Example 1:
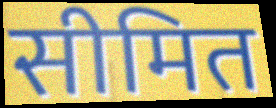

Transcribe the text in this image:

सीमित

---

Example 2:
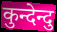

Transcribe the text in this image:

कुन्देन्दु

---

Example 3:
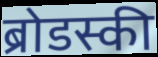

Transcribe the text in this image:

ब्रोडस्की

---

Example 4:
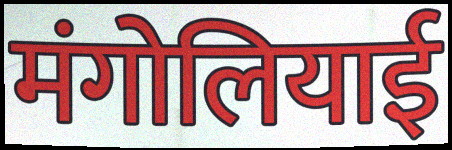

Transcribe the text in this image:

मंगोलियाई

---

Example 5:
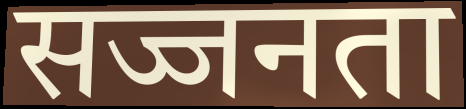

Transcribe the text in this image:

सज्जनता